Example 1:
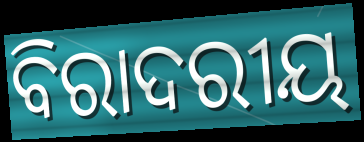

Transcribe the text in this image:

ବିରାଦରୀୟ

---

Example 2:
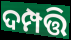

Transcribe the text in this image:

ଦମ୍ପତ୍ତି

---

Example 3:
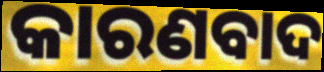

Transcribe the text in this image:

କାରଣବାଦ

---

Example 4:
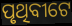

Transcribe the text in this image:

ପୃଥିବୀଟେ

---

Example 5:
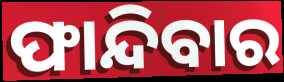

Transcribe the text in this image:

ଫାନ୍ଦିବାର